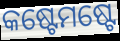
କଷ୍ଟେମଷ୍ଟେ